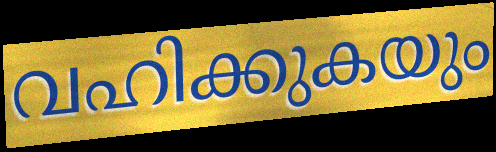
വഹിക്കുകയും